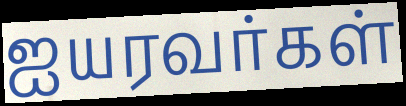
ஐயரவர்கள்